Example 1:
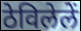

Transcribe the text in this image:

ठेविलेलें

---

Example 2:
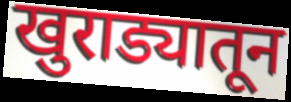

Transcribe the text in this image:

खुराड्यातून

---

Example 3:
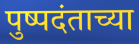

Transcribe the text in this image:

पुष्पदंताच्या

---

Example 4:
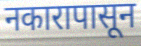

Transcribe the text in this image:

नकारापासून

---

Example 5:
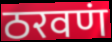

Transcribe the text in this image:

ठरवणं